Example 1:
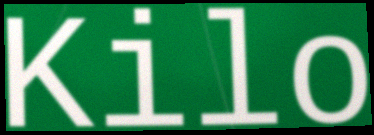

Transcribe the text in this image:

Kilo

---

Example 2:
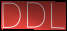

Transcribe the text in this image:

DDL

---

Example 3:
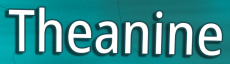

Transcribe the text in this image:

Theanine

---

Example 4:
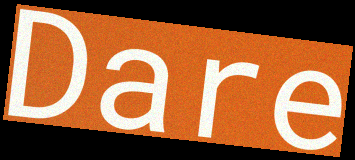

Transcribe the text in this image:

Dare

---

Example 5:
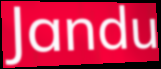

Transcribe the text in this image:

Jandu